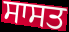
ਸਾਸਤ